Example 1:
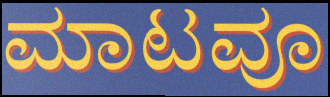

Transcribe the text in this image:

ಮಾಟವೂ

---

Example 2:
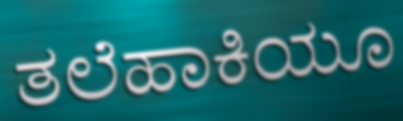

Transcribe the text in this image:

ತಲೆಹಾಕಿಯೂ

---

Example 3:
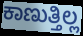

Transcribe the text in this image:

ಕಾಣುತ್ತಿಲ್ಲ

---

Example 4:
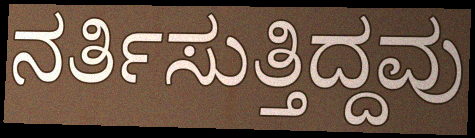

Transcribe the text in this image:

ನರ್ತಿಸುತ್ತಿದ್ದವು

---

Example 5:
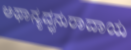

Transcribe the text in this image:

ಅಥಾನ್ಯದ್ಧನುರಾದಾಯ